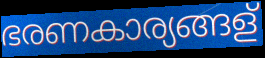
ഭരണകാര്യങ്ങള്